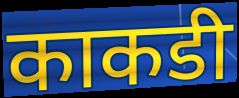
काकडी